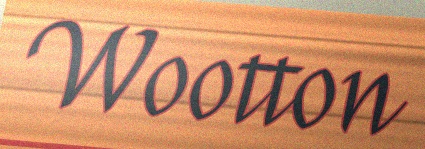
Wootton